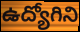
ఉద్యోగిని